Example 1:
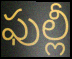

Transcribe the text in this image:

ఫుల్లీ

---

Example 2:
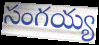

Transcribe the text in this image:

సంగయ్య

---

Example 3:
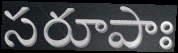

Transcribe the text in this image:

సరూపాః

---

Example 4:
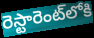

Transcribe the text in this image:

రెస్టారెంట్‌లోకి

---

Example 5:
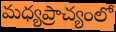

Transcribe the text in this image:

మధ్యప్రాచ్యంలో